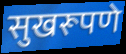
सुखरूपणे